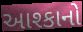
આશ્કાનો